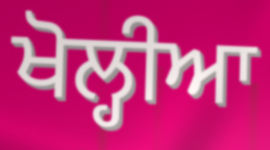
ਖੋਲ੍ਹੀਆ